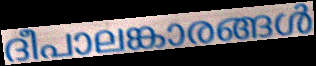
ദീപാലങ്കാരങ്ങൾ